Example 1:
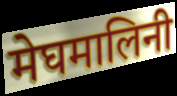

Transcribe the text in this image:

मेघमालिनी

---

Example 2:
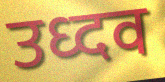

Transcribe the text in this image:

उध्दव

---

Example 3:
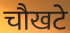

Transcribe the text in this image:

चौखटे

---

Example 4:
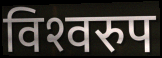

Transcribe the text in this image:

विश्वरुप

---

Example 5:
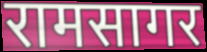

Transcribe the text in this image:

रामसागर